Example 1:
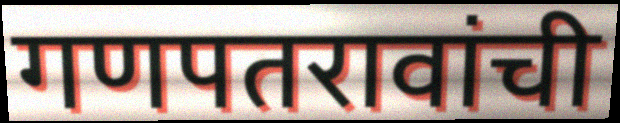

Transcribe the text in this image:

गणपतरावांची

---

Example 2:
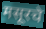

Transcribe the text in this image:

मसूरचे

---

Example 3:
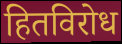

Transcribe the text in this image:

हितविरोध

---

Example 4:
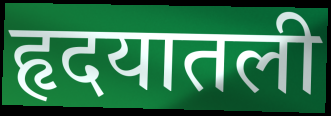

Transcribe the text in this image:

हृदयातली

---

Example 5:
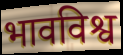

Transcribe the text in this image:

भावविश्व